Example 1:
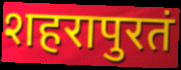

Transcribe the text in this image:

शहरापुरतं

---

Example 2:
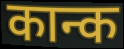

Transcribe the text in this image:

कान्क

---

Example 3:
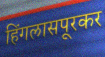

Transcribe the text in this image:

हिंगलासपूरकर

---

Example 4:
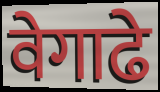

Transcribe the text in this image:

वेगाढे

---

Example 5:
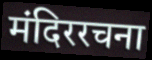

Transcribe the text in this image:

मंदिररचना